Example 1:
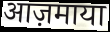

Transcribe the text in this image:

आज़माया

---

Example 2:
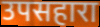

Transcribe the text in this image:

उपसहारा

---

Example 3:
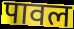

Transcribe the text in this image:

पावल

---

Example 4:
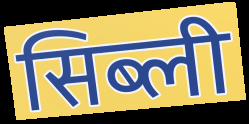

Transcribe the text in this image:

सिब्ली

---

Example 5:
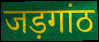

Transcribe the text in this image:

जड़गांठ